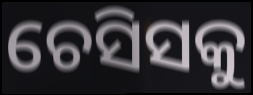
ଚେସିସକୁ